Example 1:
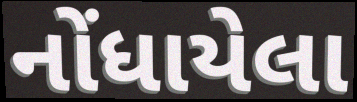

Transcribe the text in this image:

નોંધાયેલા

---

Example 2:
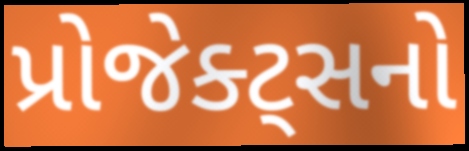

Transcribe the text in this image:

પ્રોજેક્ટ્સનો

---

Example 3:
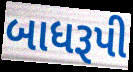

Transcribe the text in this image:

બાધરૂપી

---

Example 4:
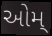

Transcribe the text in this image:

ઓમ્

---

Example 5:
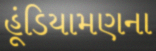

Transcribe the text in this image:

હૂંડિયામણના